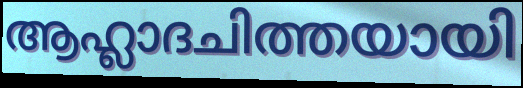
ആഹ്ലാദചിത്തയായി